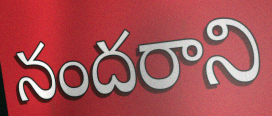
నందరాని